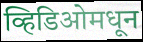
व्हिडिओमधून